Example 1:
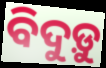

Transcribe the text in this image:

ବିଦୁଡ଼ୁ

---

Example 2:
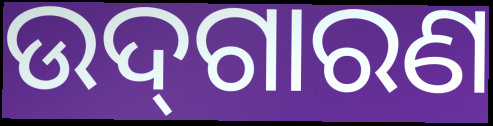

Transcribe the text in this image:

ଉଦ୍‌ଗାରଣ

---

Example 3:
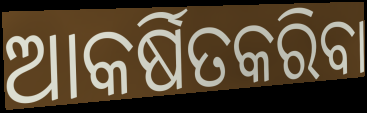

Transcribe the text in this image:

ଆକର୍ଷିତକରିବା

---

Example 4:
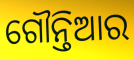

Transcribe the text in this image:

ଗୌନ୍ତିଆର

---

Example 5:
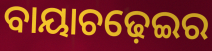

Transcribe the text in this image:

ବାୟାଚଢ଼େଇର